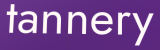
tannery